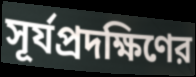
সূর্যপ্রদক্ষিণের